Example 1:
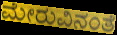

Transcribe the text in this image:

ಮೇರುವಿನಂತೆ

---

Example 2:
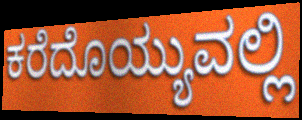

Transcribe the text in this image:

ಕರೆದೊಯ್ಯುವಲ್ಲಿ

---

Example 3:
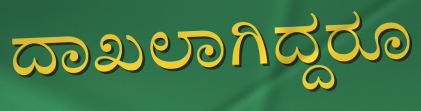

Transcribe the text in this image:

ದಾಖಲಾಗಿದ್ದರೂ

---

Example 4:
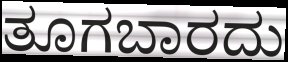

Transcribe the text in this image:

ತೂಗಬಾರದು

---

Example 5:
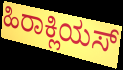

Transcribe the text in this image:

ಹಿರಾಕ್ಲಿಯಸ್